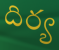
దిర్య